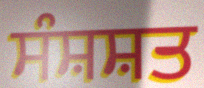
ਸੰਸ਼ਸ਼ਤ